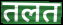
तलत